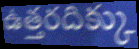
ఉత్తరదిక్కు